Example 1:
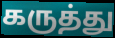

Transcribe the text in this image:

கருத்து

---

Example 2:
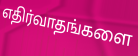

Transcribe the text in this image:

எதிர்வாதங்களை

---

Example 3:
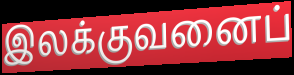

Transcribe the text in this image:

இலக்குவனைப்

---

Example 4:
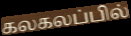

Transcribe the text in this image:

கலகலப்பில்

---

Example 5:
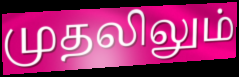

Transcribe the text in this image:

முதலிலும்